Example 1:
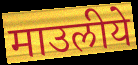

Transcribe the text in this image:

माउलीये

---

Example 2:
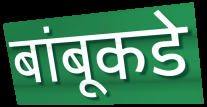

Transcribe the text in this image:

बांबूकडे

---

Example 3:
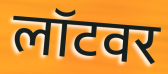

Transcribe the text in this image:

लॉटवर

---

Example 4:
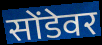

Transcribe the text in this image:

सोंडेवर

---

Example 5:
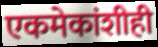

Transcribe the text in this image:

एकमेकांशीही